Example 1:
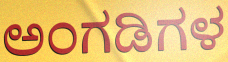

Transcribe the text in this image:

ಅಂಗಡಿಗಳ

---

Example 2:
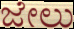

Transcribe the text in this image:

ಜೇಲು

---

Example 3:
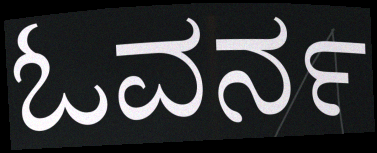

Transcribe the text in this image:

ಓವರ್ನ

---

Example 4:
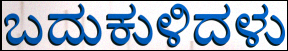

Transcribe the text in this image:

ಬದುಕುಳಿದಳು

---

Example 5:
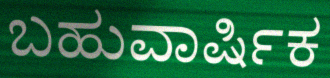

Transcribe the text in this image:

ಬಹುವಾರ್ಷಿಕ